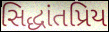
સિદ્ધાંતપ્રિય